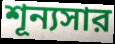
শূন্যসার